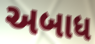
અબાધ